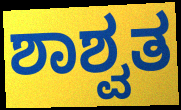
ಶಾಶ್ವತ